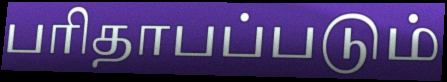
பரிதாபப்படும்